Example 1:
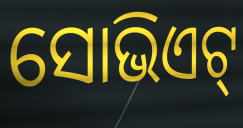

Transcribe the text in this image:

ସୋଭିଏଟ୍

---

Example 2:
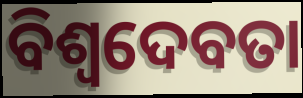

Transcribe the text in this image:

ବିଶ୍ୱଦେବତା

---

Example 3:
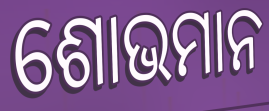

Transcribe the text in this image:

ଶୋଭମାନ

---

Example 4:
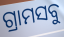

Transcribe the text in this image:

ଗ୍ରାମସବୁ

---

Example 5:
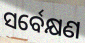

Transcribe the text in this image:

ସର୍ବେକ୍ଷଣ